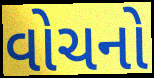
વોચનો